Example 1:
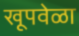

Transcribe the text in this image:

खूपवेळा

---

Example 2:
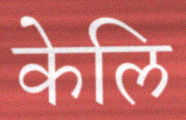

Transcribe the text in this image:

केलि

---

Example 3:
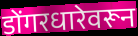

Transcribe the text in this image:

डोंगरधारेवरून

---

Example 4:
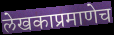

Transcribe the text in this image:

लेखकाप्रमाणेच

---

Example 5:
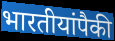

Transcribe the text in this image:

भारतीयांपैकी